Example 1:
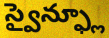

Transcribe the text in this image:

స్వైన్ఫ్లూ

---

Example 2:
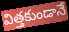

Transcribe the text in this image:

విత్తకుండానే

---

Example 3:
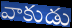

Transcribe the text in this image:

వాకుడు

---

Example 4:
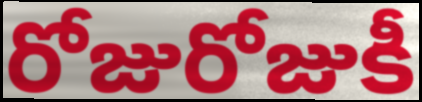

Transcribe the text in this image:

రోజురోజుకీ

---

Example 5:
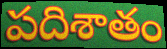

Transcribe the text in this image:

పదిశాతం